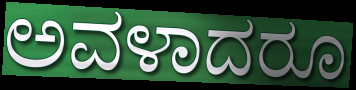
ಅವಳಾದರೂ